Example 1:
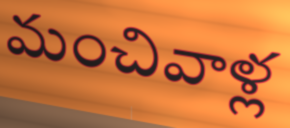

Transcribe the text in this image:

మంచివాళ్ల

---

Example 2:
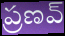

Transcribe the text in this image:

ప్రణవ్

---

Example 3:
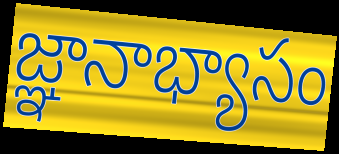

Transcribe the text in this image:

జ్ఞానాభ్యాసం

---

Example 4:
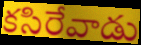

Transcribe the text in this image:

కసిరేవాడు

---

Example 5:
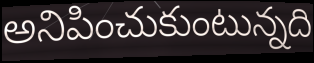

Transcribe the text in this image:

అనిపించుకుంటున్నది